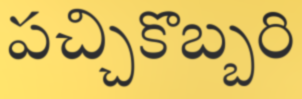
పచ్చికొబ్బరి